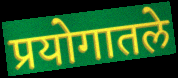
प्रयोगातले